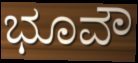
ಭೂವೌ